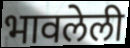
भावलेली